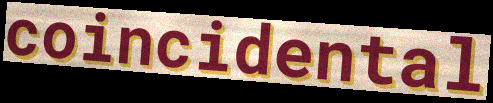
coincidental